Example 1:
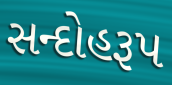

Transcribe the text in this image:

સન્દોહરૂપ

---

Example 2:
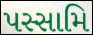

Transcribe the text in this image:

પસ્સામિ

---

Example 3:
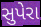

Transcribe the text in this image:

સુપેરા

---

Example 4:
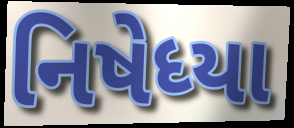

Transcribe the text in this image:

નિષેધ્યા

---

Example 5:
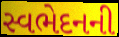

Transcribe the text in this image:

સ્વભેદનની